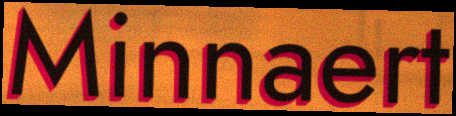
Minnaert